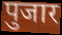
पुजार